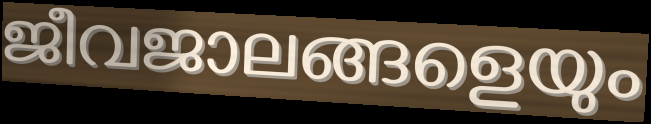
ജീവജാലങ്ങളെയും